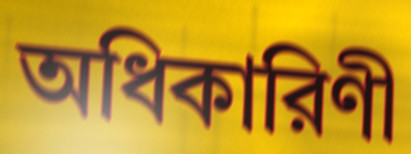
অধিকারিণী